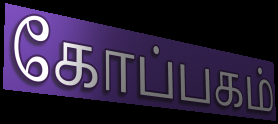
கோப்பகம்